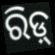
ରିଡ଼୍